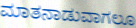
ಮಾತನಾಡುವಾಗಲೂ